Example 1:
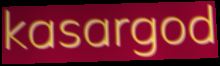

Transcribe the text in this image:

kasargod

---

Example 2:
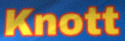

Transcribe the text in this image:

Knott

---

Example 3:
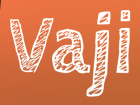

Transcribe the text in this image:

Vaji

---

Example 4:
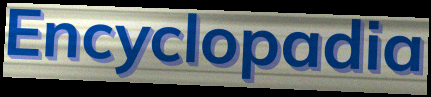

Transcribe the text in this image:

Encyclopadia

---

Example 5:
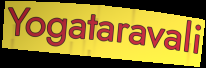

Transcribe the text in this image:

Yogataravali